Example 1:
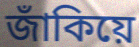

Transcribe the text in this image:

জাঁকিয়ে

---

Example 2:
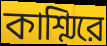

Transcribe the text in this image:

কাশ্মিরে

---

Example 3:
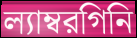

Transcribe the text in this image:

ল্যাম্বরগিনি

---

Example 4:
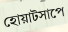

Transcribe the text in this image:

হোয়াটসাপে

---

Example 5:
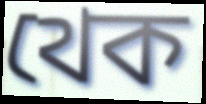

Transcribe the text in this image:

থেক